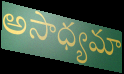
అసాధ్యమా